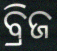
ବ୍ରିଜ